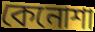
কেনোশা